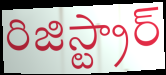
రిజిస్ట్రార్